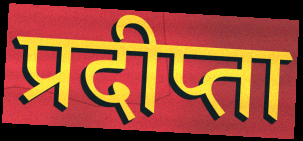
प्रदीप्ता